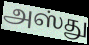
அஸ்து